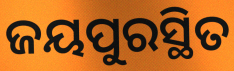
ଜୟପୁରସ୍ଥିତ